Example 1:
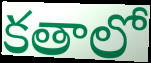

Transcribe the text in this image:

కతాలో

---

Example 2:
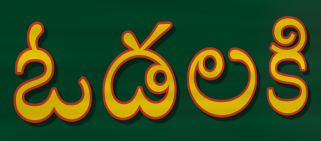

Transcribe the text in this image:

ఓడలకి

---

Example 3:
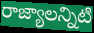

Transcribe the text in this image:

రాజ్యాలన్నిటి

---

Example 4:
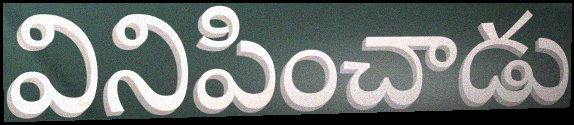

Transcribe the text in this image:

వినిపించాడు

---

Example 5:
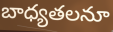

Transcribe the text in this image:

బాధ్యతలనూ